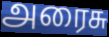
அரைசு